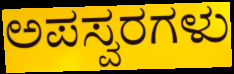
ಅಪಸ್ವರಗಳು